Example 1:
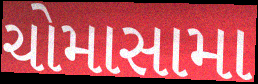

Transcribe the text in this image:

ચોમાસામા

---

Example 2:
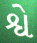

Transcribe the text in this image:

શ્વે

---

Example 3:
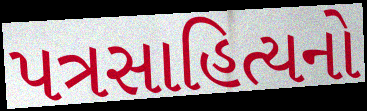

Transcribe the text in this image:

પત્રસાહિત્યનો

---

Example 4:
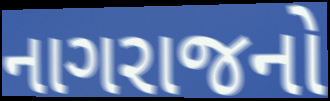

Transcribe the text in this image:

નાગરાજનો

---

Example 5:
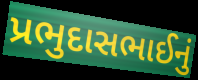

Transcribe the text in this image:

પ્રભુદાસભાઈનું